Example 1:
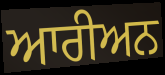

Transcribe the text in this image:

ਆਰੀਅਨ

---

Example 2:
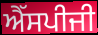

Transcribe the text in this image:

ਐੱਸਪੀਜੀ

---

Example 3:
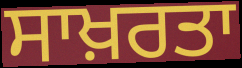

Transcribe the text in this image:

ਸਾਖ਼ਰਤਾ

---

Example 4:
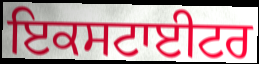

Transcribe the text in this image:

ਇਕਸਟਾਈਟਰ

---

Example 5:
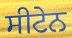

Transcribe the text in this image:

ਸੀਟੇਨ